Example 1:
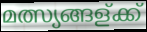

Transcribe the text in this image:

മത്സ്യങ്ങള്ക്ക്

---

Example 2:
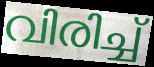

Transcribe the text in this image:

വിരിച്ച്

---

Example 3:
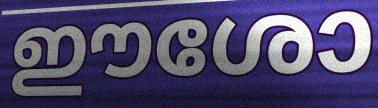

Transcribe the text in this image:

ഈശോ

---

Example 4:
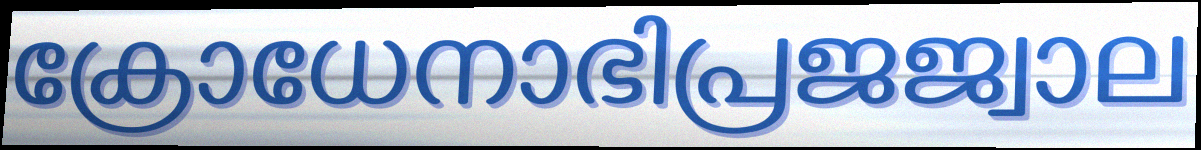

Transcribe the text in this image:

ക്രോധേനാഭിപ്രജജ്വാല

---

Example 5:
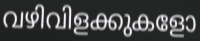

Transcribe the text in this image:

വഴിവിളക്കുകളോ